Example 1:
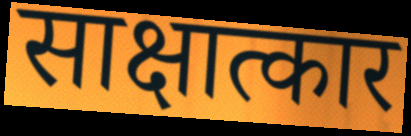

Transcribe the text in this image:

साक्षात्कार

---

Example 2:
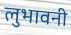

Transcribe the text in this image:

लुभावनी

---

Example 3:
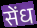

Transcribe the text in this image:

सेंध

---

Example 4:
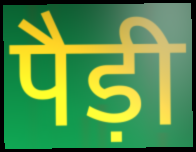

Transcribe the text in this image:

पैड़ी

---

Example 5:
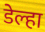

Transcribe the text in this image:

डेल्हा